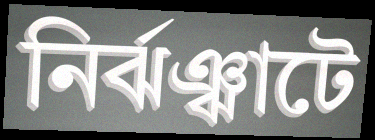
নির্ঝঞ্ঝাটে